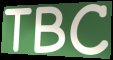
TBC